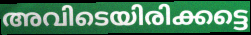
അവിടെയിരിക്കട്ടെ